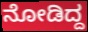
ನೋಡಿದ್ದ